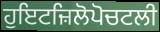
ਹੁਇਟਜ਼ਿਲੋਪੋਚਟਲੀ